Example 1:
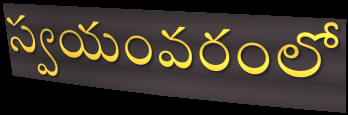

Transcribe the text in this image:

స్వయంవరంలో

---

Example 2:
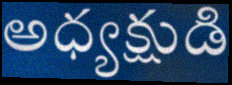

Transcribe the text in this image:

అధ్యక్షుడి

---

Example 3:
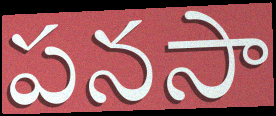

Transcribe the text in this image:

పనసా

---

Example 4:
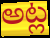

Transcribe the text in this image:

అట్ల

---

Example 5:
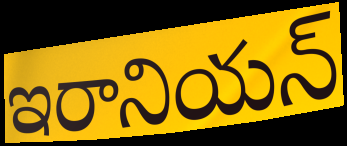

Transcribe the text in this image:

ఇరానియన్